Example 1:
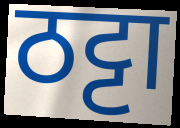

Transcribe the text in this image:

ठट्टा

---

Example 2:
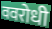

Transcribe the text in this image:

ववरोधी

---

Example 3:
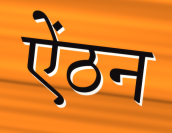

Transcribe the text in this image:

ऐंठन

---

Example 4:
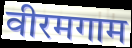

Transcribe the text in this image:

वीरमगाम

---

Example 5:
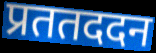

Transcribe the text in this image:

प्रततददन